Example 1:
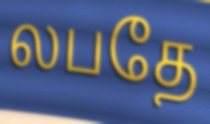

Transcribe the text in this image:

லபதே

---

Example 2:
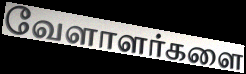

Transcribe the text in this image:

வேளாளர்களை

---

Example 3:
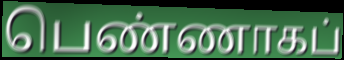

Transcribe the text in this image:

பெண்ணாகப்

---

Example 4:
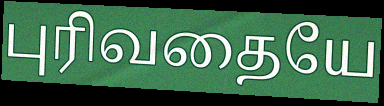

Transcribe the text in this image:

புரிவதையே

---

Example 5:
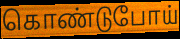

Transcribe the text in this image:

கொண்டுபோய்